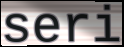
seri